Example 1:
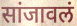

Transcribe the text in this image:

सांजावलं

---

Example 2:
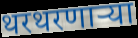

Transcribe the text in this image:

थरथरणाऱ्या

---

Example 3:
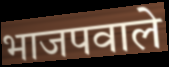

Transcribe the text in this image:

भाजपवाले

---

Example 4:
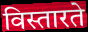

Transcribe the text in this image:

विस्तारते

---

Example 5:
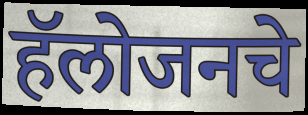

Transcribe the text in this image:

हॅलोजनचे